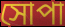
সোপা